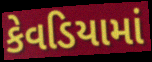
કેવડિયામાં